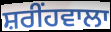
ਸ਼ਰੀਂਹਵਾਲਾ